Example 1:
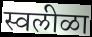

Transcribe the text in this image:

स्वलीळा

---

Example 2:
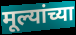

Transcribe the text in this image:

मूल्यांच्या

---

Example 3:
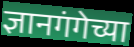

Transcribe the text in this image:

ज्ञानगंगेच्या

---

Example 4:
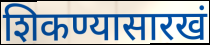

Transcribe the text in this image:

शिकण्यासारखं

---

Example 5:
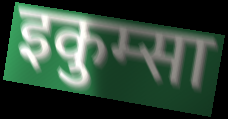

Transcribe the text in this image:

इकुम्सा